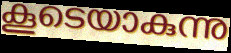
കൂടെയാകുന്നു